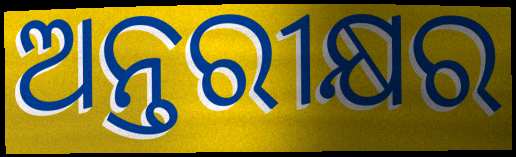
ଅନ୍ତରୀକ୍ଷର